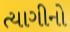
ત્યાગીનો